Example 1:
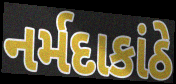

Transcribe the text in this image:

નર્મદાકાંઠે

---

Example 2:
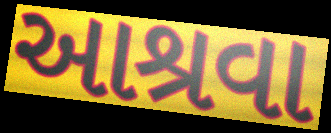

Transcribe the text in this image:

આશ્રવા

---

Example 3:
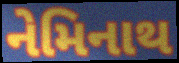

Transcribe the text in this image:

નેમિનાથ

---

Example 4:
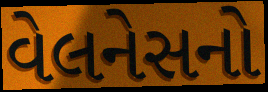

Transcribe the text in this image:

વેલનેસનો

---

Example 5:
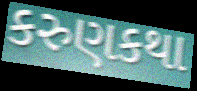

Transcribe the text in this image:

કરુણકથા